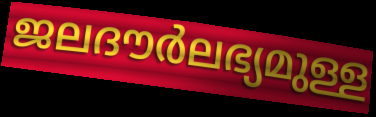
ജലദൗർലഭ്യമുള്ള